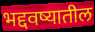
भद्दवष्यातील